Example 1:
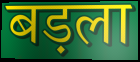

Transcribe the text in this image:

बड़ला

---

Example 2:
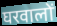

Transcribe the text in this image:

घरवालों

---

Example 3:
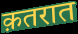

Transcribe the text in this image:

क़तरात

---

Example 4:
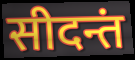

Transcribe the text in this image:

सीदन्तं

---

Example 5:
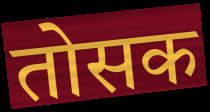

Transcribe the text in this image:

तोसक